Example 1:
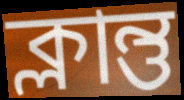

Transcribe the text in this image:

ক্লান্তু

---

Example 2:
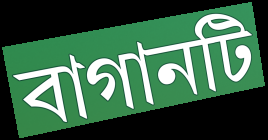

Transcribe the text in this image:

বাগানটি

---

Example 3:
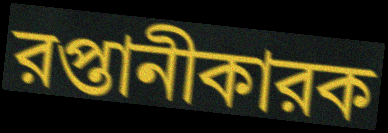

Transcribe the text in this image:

রপ্তানীকারক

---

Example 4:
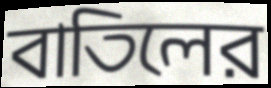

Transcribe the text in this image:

বাতিলের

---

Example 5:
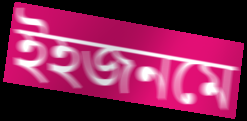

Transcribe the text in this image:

ইহজনমে